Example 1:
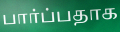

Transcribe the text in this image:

பார்ப்பதாக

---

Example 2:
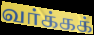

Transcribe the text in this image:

வர்க்கக்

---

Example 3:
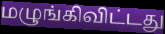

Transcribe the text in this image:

மழுங்கிவிட்டது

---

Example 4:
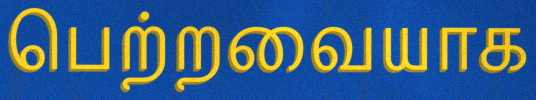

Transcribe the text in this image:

பெற்றவையாக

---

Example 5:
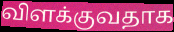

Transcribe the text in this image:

விளக்குவதாக